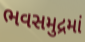
ભવસમુદ્રમાં